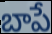
బాపే